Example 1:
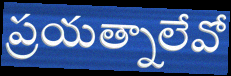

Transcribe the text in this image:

ప్రయత్నాలేవో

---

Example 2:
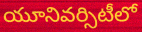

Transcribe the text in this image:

యూనివర్సిటీలో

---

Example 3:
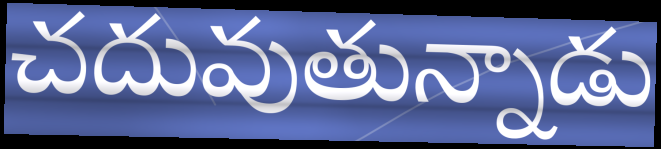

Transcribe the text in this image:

చదువుతున్నాడు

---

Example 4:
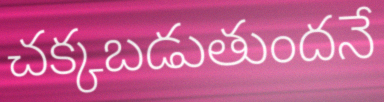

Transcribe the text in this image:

చక్కబడుతుందనే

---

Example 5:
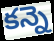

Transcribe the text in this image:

కన్నె